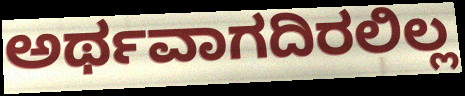
ಅರ್ಥವಾಗದಿರಲಿಲ್ಲ